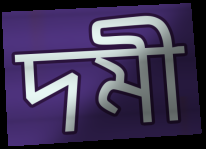
দমী